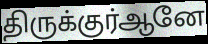
திருக்குர்ஆனே